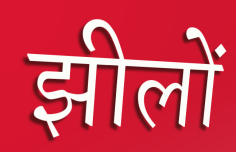
झीलों